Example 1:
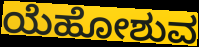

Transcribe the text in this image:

ಯೆಹೋಶುವ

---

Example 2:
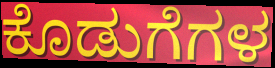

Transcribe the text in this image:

ಕೊಡುಗೆಗಳ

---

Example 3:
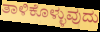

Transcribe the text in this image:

ತಾಳಿಕೊಳ್ಳುವುದು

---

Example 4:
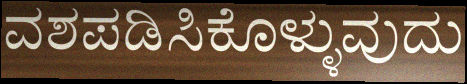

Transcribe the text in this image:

ವಶಪಡಿಸಿಕೊಳ್ಳುವುದು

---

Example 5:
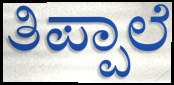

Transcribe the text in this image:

ತಿಪ್ಪಾಲೆ